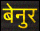
बेनुर